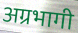
अग्रभागी